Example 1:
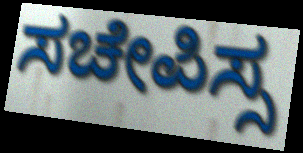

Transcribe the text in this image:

ಸಚೇಪಿಸ್ಸ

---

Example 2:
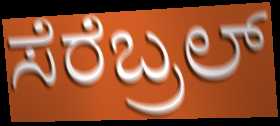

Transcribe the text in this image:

ಸೆರೆಬ್ರಲ್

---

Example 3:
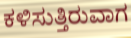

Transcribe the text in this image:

ಕಳಿಸುತ್ತಿರುವಾಗ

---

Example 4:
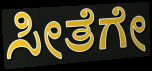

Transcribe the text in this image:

ಸೀತೆಗೇ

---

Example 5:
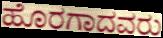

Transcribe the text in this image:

ಹೊರಗಾದವರು